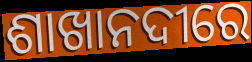
ଶାଖାନଦୀରେ